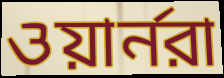
ওয়ার্নরা